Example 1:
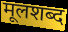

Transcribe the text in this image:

मूलशब्द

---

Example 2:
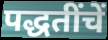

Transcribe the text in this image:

पद्धतींचें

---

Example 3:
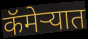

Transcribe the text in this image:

कॅमेर्‍यात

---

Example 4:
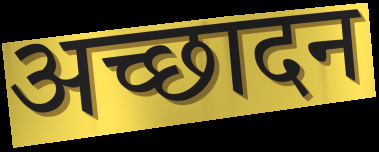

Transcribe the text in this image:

अच्छादन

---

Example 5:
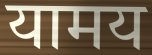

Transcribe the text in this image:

यामय